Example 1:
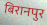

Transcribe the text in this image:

बिरानपुर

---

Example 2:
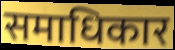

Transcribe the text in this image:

समाधिकार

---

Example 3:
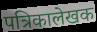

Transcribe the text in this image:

पत्रिकालेखक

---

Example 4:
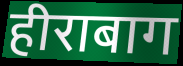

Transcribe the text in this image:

हीराबाग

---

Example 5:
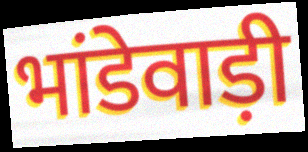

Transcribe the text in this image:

भांडेवाड़ी